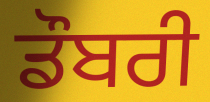
ਡੌਬਰੀ